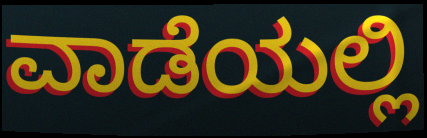
ವಾಡೆಯಲ್ಲಿ